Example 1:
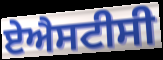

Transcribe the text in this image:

ਏਐਸਟੀਸੀ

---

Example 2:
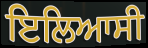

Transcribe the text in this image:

ਇਲਿਆਸੀ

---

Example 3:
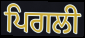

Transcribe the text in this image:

ਪਿਗਲੀ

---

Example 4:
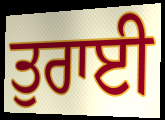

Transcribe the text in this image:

ਤੁਰਾਈ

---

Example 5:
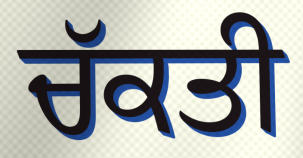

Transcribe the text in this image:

ਚੱਕਤੀ